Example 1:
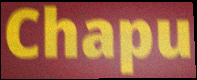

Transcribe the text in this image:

Chapu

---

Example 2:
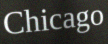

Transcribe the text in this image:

Chicago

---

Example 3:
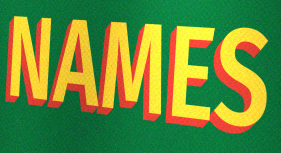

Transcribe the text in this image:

NAMES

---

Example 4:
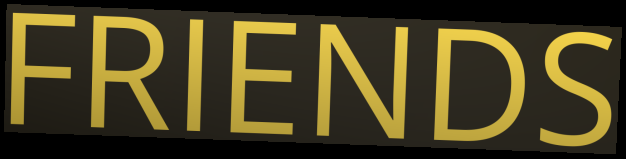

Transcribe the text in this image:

FRIENDS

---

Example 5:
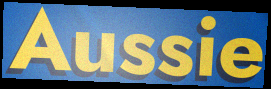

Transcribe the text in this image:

Aussie